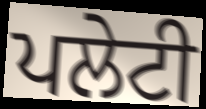
ਪਲੇਟੀ